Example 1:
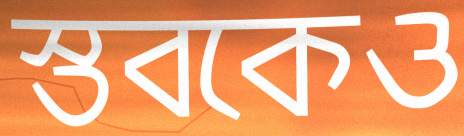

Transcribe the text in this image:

স্তবকেও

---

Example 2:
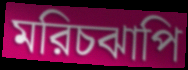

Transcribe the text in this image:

মরিচঝাপি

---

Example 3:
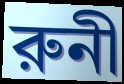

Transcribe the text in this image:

রুনী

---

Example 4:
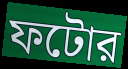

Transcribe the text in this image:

ফটোর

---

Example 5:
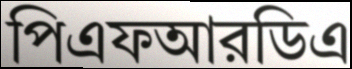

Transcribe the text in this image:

পিএফআরডিএ